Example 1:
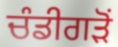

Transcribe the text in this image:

ਚੰਡੀਗੜੋਂ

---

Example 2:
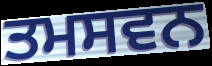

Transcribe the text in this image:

ਤਮਸਵਨ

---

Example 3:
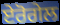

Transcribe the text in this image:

ਏਰੋਗੇਲ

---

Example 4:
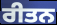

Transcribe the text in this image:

ਰੀਤਨ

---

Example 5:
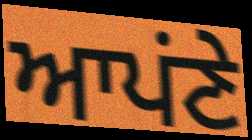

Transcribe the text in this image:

ਆਪਂਣੇ